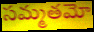
సమ్మతమో